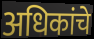
अधिकांचे